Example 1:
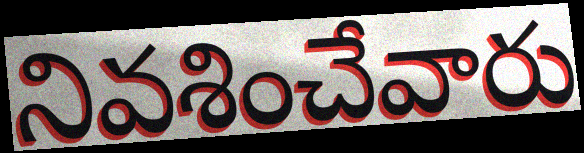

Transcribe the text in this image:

నివశించేవారు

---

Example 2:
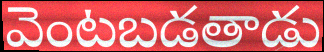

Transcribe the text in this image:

వెంటబడతాడు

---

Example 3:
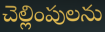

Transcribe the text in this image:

చెల్లింపులను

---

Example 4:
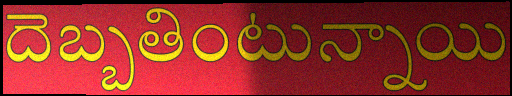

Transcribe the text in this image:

దెబ్బతింటున్నాయి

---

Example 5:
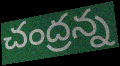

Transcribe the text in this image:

చంద్రన్న